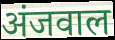
अंजवाल